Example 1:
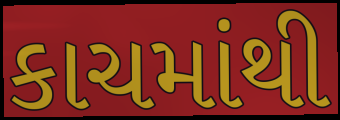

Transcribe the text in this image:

કાચમાંથી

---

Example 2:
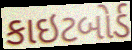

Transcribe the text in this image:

કાઇટબોર્ડ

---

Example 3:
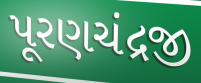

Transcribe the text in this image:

પૂરણચંદ્રજી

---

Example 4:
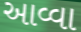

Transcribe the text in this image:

આવ્વા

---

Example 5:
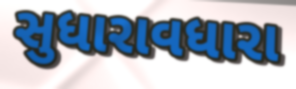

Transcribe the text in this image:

સુધારાવધારા